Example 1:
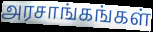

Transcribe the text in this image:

அரசாங்கங்கள்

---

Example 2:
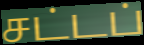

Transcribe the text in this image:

சட்டப்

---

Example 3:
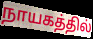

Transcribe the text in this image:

நாயகத்தில்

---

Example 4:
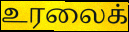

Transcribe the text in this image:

உரலைக்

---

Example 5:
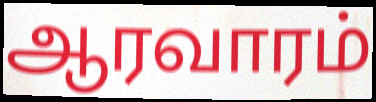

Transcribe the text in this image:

ஆரவாரம்